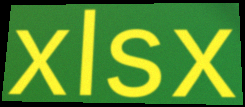
xlsx